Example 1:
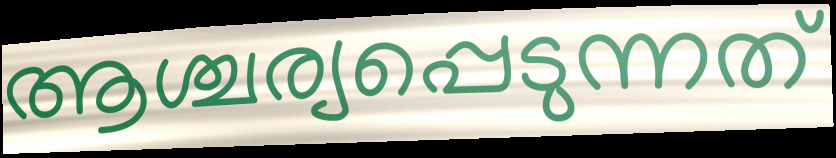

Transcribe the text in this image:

ആശ്ചര്യപ്പെടുന്നത്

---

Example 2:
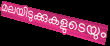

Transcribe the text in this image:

മലയിടുക്കുകളുടെയും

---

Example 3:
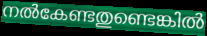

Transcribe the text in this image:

നൽകേണ്ടതുണ്ടെങ്കിൽ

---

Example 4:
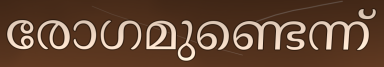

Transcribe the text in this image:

രോഗമുണ്ടെന്ന്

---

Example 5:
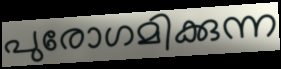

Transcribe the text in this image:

പുരോഗമിക്കുന്ന